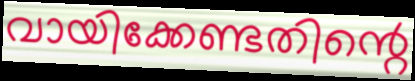
വായിക്കേണ്ടതിന്റെ